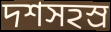
দশসহস্র